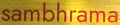
sambhrama